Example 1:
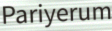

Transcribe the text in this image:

Pariyerum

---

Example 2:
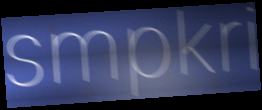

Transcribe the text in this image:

smpkri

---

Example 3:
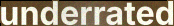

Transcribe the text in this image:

underrated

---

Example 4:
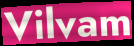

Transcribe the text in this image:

Vilvam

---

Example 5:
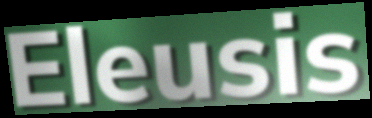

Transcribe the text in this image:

Eleusis